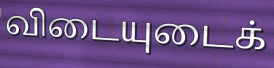
விடையுடைக்